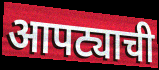
आपट्याची